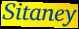
Sitaney